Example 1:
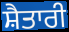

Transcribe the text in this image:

ਸ਼ੈਤਾਰੀ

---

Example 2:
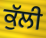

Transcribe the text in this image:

ਕੁੱਲੀ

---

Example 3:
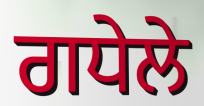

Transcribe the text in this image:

ਗਧੇਲੇ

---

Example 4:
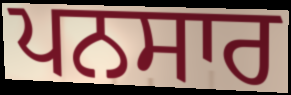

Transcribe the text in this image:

ਪਨਸਾਰ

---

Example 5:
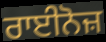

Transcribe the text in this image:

ਰਾਈਨੋਜ਼